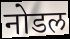
नोडल